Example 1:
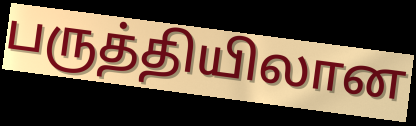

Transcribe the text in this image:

பருத்தியிலான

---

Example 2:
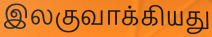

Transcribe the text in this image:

இலகுவாக்கியது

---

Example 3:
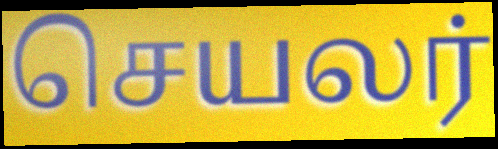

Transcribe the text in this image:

செயலர்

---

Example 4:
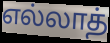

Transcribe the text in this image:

எல்லாத்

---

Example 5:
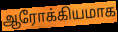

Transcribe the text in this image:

ஆரோக்கியமாக